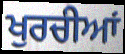
ਖੁਰਚੀਆਂ